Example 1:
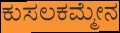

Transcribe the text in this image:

ಕುಸಲಕಮ್ಮೇನ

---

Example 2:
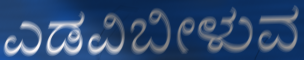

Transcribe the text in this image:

ಎಡವಿಬೀಳುವ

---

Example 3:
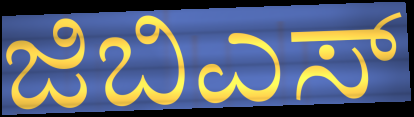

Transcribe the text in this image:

ಜಿಬಿಎಸ್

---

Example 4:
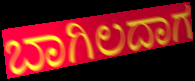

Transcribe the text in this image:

ಬಾಗಿಲದಾಗ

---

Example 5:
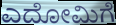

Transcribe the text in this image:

ಎದೋಮಿಗೆ